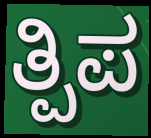
ತ್ಪಿಪ